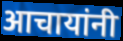
आचायांनी